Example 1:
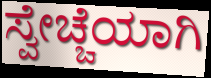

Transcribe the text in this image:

ಸ್ವೇಚ್ಚೆಯಾಗಿ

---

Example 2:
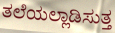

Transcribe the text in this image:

ತಲೆಯಲ್ಲಾಡಿಸುತ್ತ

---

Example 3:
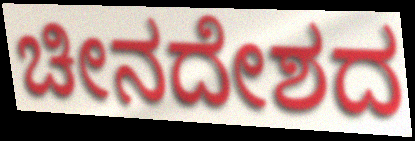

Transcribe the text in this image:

ಚೀನದೇಶದ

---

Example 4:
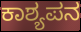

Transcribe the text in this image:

ಕಾಶ್ಯಪನ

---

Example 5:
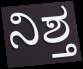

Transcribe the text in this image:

ನಿಶ್ತ